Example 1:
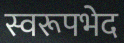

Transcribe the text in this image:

स्वरूपभेद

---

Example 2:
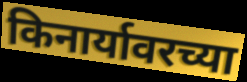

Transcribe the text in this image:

किनार्यावरच्या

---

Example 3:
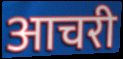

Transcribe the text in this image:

आचरी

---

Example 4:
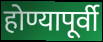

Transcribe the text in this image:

होण्यापूर्वी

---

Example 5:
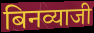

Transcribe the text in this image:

बिनव्याजी